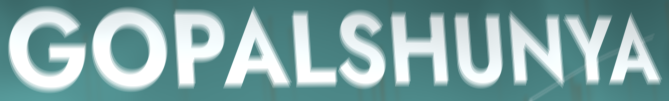
GOPALSHUNYA